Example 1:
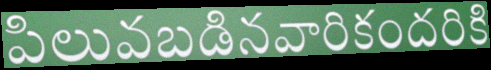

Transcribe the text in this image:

పిలువబడినవారికందరికి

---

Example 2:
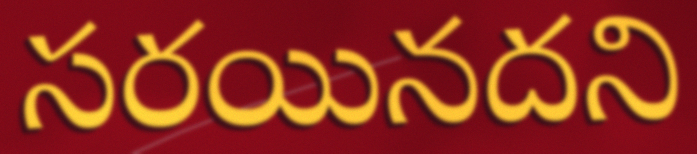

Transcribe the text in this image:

సరయినదని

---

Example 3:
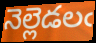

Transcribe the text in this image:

నెల్లెడలఁ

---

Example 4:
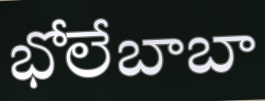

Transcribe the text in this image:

భోలేబాబా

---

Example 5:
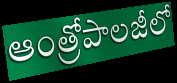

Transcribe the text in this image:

ఆంత్రోపాలజీలో